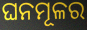
ଘନମୂଳର